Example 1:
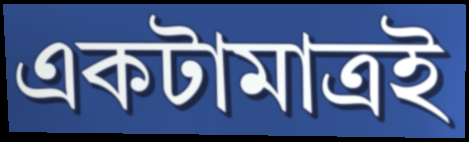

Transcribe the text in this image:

একটামাত্রই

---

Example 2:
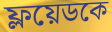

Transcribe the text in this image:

ফ্লয়েডকে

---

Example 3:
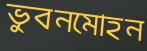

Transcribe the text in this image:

ভুবনমোহন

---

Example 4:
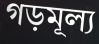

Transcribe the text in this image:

গড়মূল্য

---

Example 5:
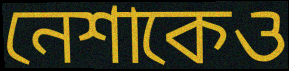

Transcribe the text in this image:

নেশাকেও